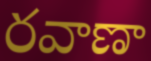
రవాణా